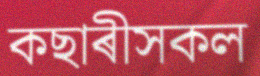
কছাৰীসকল